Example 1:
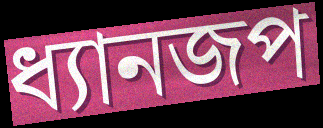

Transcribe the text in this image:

ধ্যানজপ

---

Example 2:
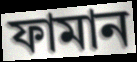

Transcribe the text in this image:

ফামান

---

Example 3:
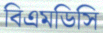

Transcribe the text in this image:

বিএমডিসি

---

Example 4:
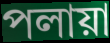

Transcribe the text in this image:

পলায়া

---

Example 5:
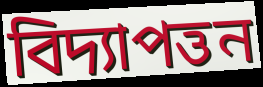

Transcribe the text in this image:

বিদ্যাপত্তন